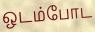
ஒடம்போட